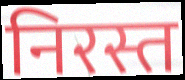
निरस्त